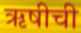
ॠषीची